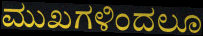
ಮುಖಗಳಿಂದಲೂ